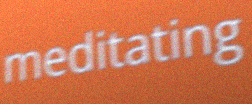
meditating